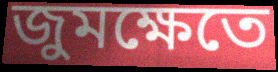
জুমক্ষেতে